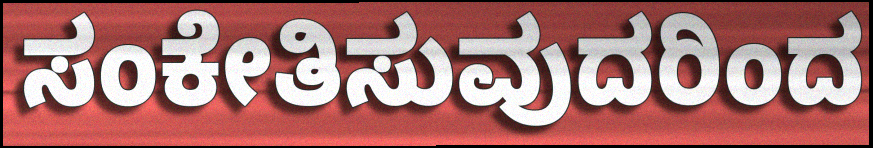
ಸಂಕೇತಿಸುವುದರಿಂದ